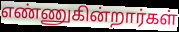
எண்ணுகின்றார்கள்